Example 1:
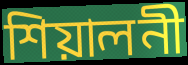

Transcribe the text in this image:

শিয়ালনী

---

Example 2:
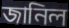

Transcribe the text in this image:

জানিল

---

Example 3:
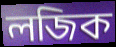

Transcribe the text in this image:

লজিক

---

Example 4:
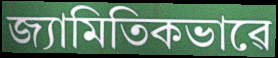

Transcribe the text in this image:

জ্যামিতিকভাৱে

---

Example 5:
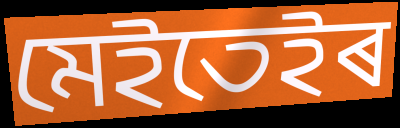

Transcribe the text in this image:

মেইতেইৰ